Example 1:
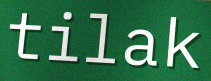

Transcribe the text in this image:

tilak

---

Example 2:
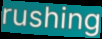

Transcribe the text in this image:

rushing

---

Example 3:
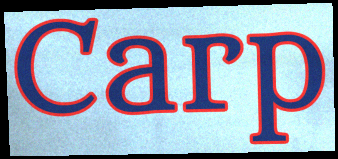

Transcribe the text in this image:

Carp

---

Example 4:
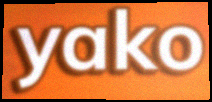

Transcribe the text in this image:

yako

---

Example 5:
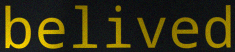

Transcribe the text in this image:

belived